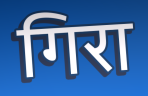
गिरा